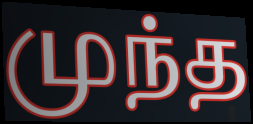
முந்த